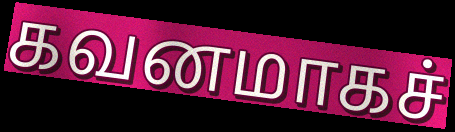
கவனமாகச்